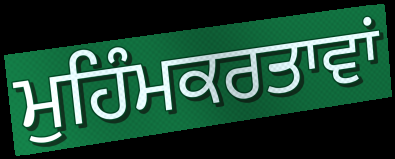
ਮੁਹਿੰਮਕਰਤਾਵਾਂ